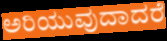
ಅರಿಯುವುದಾದರೆ